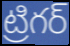
ట్రిగర్